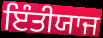
ਇੰਤੀਯਾਜ